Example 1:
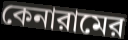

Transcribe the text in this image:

কেনারামের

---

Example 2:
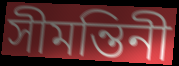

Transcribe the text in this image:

সীমন্তিনী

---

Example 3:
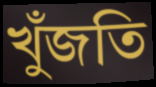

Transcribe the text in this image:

খুঁজতি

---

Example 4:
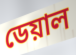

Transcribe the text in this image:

ডেয়াল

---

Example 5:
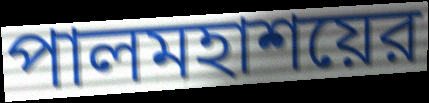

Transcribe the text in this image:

পালমহাশয়ের